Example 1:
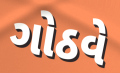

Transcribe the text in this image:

ગોઠવે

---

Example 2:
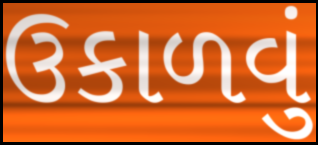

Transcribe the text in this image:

ઉકાળવું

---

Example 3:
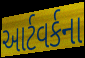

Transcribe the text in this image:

આર્ટવર્કના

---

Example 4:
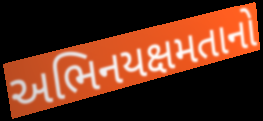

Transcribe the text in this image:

અભિનયક્ષમતાનો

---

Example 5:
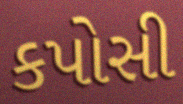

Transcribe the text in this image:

કપોસી